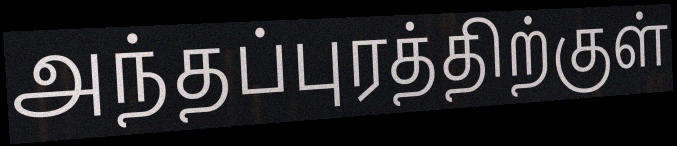
அந்தப்புரத்திற்குள்